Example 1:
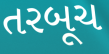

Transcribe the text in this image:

તરબૂચ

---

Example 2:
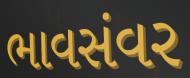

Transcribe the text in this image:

ભાવસંવર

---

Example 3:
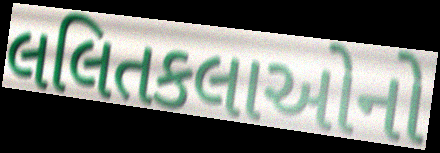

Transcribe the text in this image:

લલિતકલાઓનો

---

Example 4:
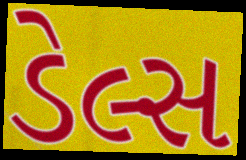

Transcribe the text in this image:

ડેલ્સ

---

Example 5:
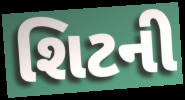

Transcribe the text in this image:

શિટની